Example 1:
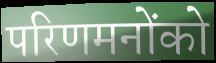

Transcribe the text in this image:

परिणमनोंको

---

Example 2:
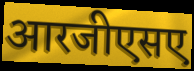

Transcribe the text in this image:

आरजीएसए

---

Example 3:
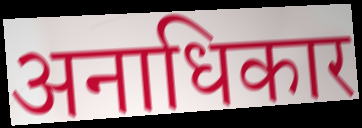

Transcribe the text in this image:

अनाधिकार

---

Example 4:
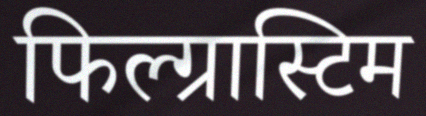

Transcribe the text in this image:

फिल्ग्रास्टिम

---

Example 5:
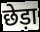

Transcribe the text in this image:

छेड़ा